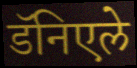
डॅनिएले